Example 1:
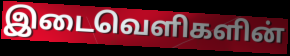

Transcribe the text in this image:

இடைவெளிகளின்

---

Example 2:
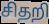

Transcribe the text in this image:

சிதறி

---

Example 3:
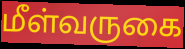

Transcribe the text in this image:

மீள்வருகை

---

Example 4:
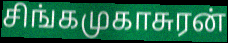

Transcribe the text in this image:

சிங்கமுகாசுரன்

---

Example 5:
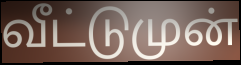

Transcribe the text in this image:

வீட்டுமுன்